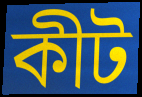
কীট